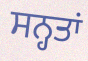
ਸਨ੍ਹਤਾਂ